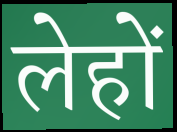
लेहों